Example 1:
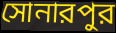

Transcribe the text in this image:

সোনারপুর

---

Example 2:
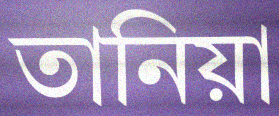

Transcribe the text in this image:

তানিয়া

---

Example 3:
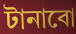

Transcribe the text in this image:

টানাবো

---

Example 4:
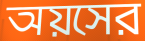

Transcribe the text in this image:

অয়সের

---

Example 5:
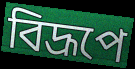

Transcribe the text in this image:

বিদ্রূপে